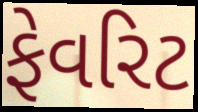
ફેવરિટ